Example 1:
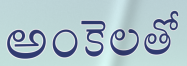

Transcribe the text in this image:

అంకెలతో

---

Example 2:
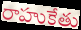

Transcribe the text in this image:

రాహుకేతు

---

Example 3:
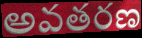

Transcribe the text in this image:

అవతరణ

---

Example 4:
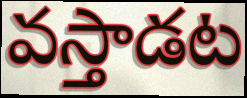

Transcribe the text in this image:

వస్తాడట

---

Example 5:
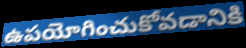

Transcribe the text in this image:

ఉపయోగించుకోవడానికి